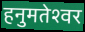
हनुमतेश्वर